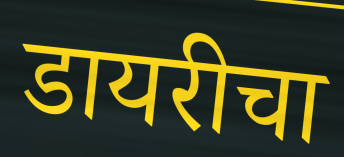
डायरीचा